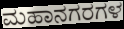
ಮಹಾನಗರಗಳ